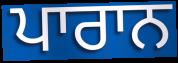
ਪਾਰਾਨ